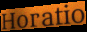
Horatio